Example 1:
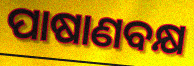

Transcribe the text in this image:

ପାଷାଣବକ୍ଷ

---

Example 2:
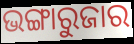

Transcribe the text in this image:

ଭଙ୍ଗାରୁଜାର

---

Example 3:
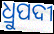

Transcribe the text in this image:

ଧ୍ରୁପଦୀ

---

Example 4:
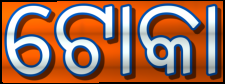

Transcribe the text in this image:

ଟୋକା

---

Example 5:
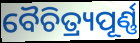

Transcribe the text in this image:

ବୈଚିତ୍ର୍ୟପୂର୍ଣ୍ଣ